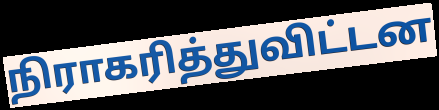
நிராகரித்துவிட்டன